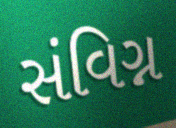
સંવિગ્ન